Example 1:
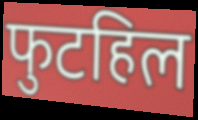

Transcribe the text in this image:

फुटहिल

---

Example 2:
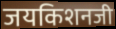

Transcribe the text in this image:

जयकिशनजी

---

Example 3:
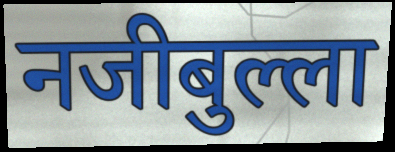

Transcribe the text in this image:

नजीबुल्ला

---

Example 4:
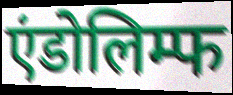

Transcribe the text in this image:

एंडोलिम्फ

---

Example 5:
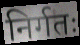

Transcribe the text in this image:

निर्गतः